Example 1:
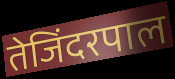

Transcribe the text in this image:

तेजिंदरपाल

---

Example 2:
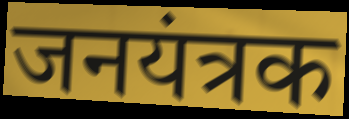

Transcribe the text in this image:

जनयंत्रक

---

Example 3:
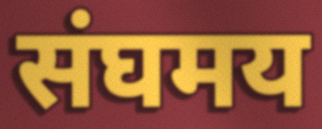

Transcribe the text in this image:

संघमय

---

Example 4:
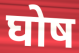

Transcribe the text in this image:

घोष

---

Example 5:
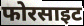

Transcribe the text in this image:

फोरसाइट